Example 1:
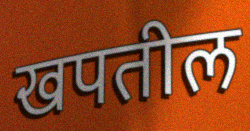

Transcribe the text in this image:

खपतील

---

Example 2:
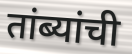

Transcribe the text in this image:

तांब्यांची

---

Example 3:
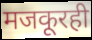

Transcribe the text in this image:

मजकूरही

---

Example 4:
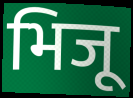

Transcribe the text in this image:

भिजू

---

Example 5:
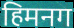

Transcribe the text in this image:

हिमनग